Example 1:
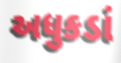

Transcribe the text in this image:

અધુકડાં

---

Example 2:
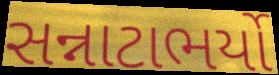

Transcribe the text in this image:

સન્નાટાભર્યો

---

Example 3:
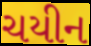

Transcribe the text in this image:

ચયીન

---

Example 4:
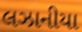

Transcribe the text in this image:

લઝાનીયા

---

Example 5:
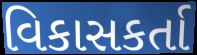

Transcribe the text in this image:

વિકાસકર્તા